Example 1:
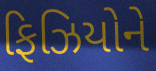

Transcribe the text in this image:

ફિઝિયોને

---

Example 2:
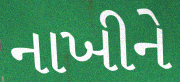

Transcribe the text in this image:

નાખીને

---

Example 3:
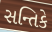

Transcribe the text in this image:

સન્તિકે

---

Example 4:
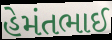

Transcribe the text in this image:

હેમંતભાઈ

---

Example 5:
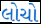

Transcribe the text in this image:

લોચો